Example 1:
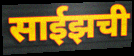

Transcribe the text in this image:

साईझची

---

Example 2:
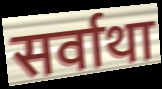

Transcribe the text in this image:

सर्वाथा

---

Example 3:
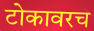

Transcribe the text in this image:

टोकावरच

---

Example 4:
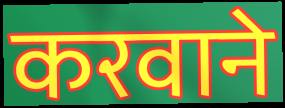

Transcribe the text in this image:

करवाने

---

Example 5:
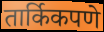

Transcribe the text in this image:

तार्किकपणे